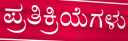
ಪ್ರತಿಕ್ರಿಯೆಗಳು